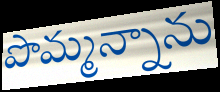
పొమ్మన్నాను